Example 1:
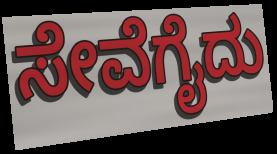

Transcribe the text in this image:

ಸೇವೆಗೈದು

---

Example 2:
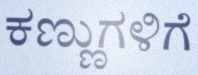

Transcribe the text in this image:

ಕಣ್ಣುಗಳಿಗೆ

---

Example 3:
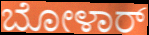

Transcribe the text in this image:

ಬೋಳಾರ್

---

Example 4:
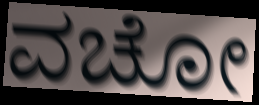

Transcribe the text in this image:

ವಚೋ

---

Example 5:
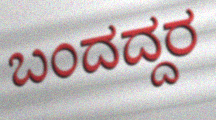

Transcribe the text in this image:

ಬಂದದ್ದರ